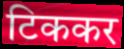
टिककर